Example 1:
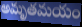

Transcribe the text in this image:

అమృతమయం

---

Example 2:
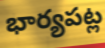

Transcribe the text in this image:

భార్యపట్ల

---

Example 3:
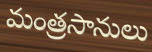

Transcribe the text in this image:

మంత్రసానులు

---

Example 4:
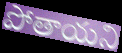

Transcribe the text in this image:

పోతాయని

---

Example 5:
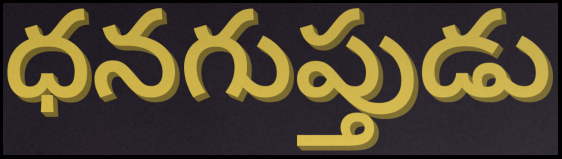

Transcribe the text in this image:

ధనగుప్తుడు